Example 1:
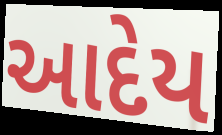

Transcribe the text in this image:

આદેય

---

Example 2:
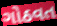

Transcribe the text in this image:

ગોઠવત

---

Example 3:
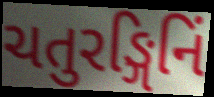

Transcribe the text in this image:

ચતુરઙ્ગિનિં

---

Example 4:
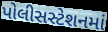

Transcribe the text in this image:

પોલીસસ્ટેશનમાં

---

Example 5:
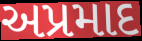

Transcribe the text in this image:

અપ્રમાદ